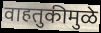
वाहतुकीमुळे